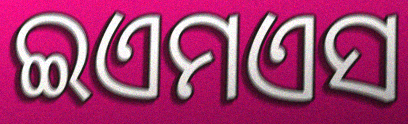
ଇଏମଏସ